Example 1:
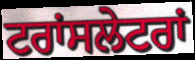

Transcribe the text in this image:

ਟਰਾਂਸਲੇਟਰਾਂ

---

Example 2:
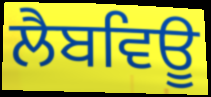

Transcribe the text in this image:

ਲੈਬਵਿਊ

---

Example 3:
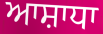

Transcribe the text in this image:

ਆਸ਼ਾਧਾ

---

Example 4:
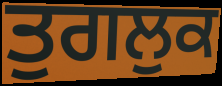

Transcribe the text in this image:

ਤੁਗਲੁਕ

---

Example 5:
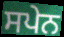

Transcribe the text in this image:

ਸਪੇਨ